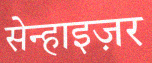
सेन्हाइज़र